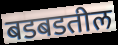
बडबडतील